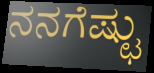
ನನಗೆಷ್ಟು